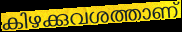
കിഴക്കുവശത്താണ്